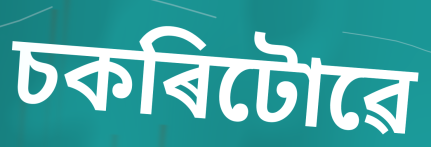
চকৰিটোৱে